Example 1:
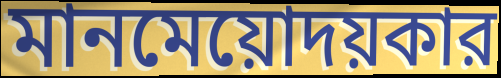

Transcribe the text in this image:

মানমেয়োদয়কার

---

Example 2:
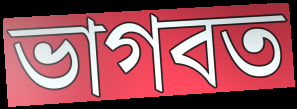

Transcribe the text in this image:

ভাগবত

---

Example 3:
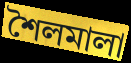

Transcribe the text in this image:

শৈলমালা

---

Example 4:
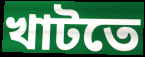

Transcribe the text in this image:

খাটতে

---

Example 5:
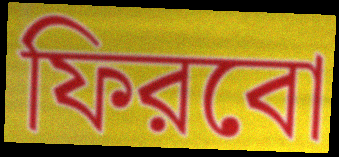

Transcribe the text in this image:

ফিরবো